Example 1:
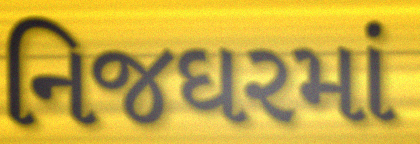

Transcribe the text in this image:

નિજઘરમાં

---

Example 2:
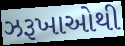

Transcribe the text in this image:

ઝરૂખાઓથી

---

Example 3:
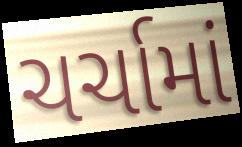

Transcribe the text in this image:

ચર્ચામાં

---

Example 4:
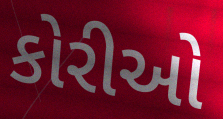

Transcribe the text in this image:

કોરીઓ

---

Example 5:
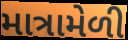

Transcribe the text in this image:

માત્રામેળી